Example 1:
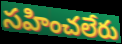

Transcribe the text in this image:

సహించలేరు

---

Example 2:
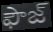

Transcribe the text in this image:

ఫౌజ్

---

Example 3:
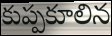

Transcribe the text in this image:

కుప్పకూలిన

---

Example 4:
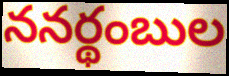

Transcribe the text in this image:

ననర్థంబుల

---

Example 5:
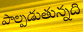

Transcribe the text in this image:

పాల్పడుతున్నది